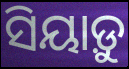
ସିୟାଡ଼ୁ